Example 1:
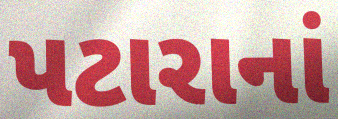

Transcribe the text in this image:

પટારાનાં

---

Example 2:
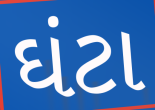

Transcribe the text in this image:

ઘંટા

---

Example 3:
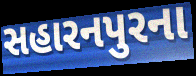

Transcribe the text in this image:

સહારનપુરના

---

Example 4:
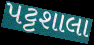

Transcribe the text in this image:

પટ્ટશાલા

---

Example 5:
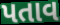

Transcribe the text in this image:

પતાવ